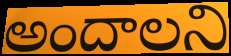
అందాలని